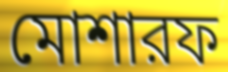
মোশারফ